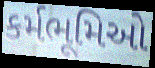
કર્મભૂમિઓ